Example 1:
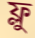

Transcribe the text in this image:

ফ্লু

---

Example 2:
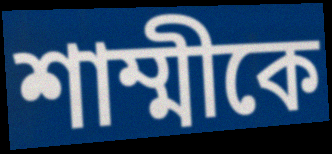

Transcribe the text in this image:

শাম্মীকে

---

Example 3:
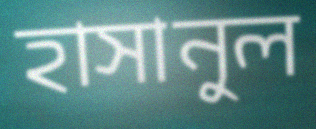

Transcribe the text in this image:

হাসানুল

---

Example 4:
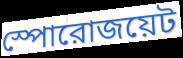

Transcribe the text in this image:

স্পোরোজয়েট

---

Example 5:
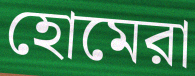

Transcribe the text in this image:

হোমেরা